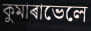
কুমাৰাভেলে